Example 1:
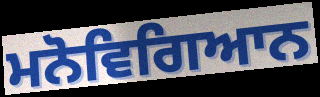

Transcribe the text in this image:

ਮਨੋਵਿਗਿਆਨ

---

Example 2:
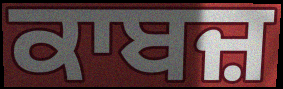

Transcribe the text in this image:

ਕਾਬਜ਼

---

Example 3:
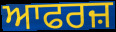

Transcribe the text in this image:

ਆਫਰਜ਼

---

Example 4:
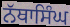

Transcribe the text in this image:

ਨੱਥਾਸਿੰਘ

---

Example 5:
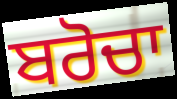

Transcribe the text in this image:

ਬਰੋਚਾ